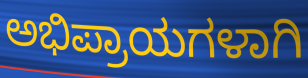
ಅಭಿಪ್ರಾಯಗಳಾಗಿ